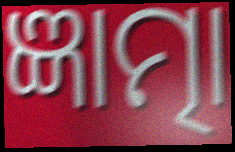
ଜ୍ଞାତ୍ମା